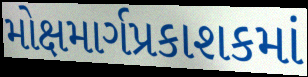
મોક્ષમાર્ગપ્રકાશકમાં